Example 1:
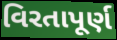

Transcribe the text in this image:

વિરતાપૂર્ણ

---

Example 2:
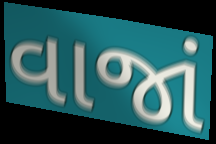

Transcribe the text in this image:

વાજાં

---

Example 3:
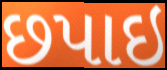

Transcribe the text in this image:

છપાઇ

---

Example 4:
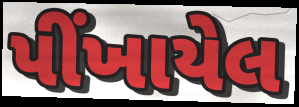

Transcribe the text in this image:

પીંખાયેલ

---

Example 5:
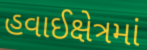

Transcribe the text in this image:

હવાઈક્ષેત્રમાં